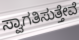
ಸ್ವಾಗತಿಸುತ್ತೇವೆ